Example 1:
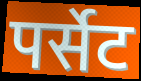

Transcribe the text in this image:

पर्सेट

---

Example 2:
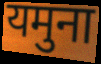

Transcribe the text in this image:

यमुना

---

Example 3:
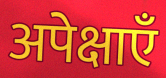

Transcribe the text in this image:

अपेक्षाएँ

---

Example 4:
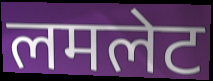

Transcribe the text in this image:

लमलेट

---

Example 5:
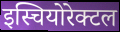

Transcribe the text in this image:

इस्चियोरेक्टल